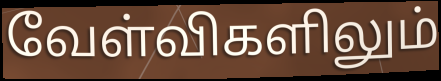
வேள்விகளிலும்